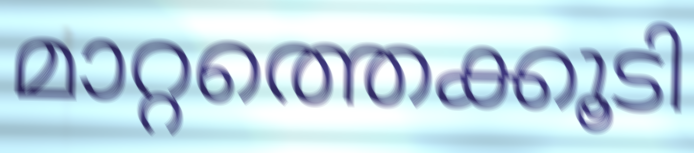
മാറ്റത്തെക്കൂടി